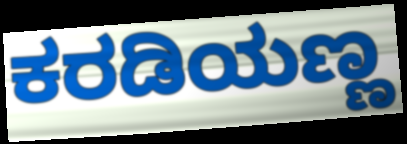
ಕರಡಿಯಣ್ಣ